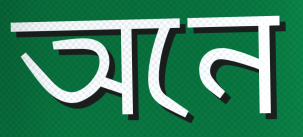
অনে